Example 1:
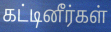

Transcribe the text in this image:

கட்டினீர்கள்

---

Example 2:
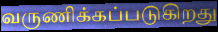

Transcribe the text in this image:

வருணிக்கப்படுகிறது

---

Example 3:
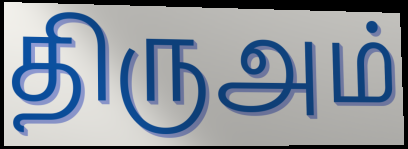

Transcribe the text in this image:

திருஅம்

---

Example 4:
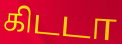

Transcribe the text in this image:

கிடடா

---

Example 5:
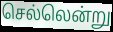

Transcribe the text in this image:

செல்லென்று